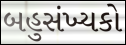
બહુસંખ્યકો